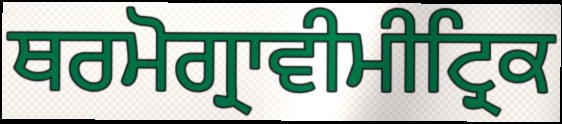
ਥਰਮੋਗ੍ਰਾਵੀਮੀਟ੍ਰਿਕ